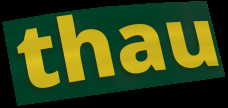
thau